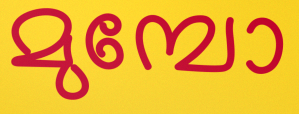
മുമ്പോ